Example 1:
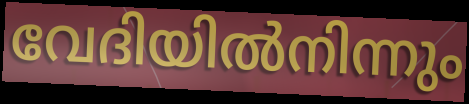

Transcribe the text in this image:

വേദിയിൽനിന്നും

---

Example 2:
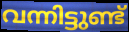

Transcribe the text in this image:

വന്നിട്ടുണ്ട്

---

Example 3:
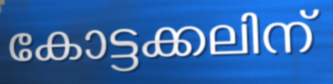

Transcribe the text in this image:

കോട്ടക്കലിന്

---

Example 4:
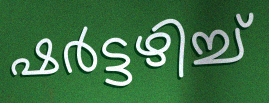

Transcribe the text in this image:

ഷർട്ടഴിച്ച്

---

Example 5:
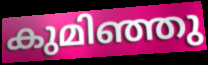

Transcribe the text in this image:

കുമിഞ്ഞു